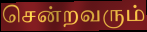
சென்றவரும்